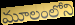
మూలంలోని